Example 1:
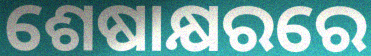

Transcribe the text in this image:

ଶେଷାକ୍ଷରରେ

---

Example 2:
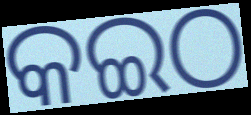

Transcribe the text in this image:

କଇଠ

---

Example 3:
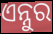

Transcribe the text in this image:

ଏନ୍ନୁର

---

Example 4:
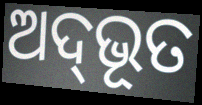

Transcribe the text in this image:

ଅଦ୍‌ଭୂତ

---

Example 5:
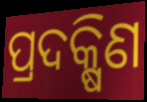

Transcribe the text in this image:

ପ୍ରଦକ୍ଷିଣ